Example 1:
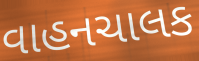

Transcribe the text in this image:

વાહનચાલક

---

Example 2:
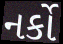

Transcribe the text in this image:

નર્કો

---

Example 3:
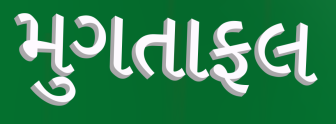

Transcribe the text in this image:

મુગતાફલ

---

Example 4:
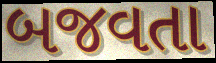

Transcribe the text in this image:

બજવતા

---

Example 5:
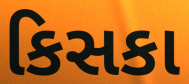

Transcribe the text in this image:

કિસકા